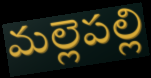
మల్లెపల్లి